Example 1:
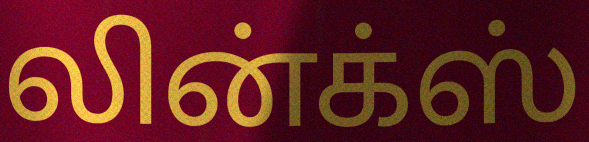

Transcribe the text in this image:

லின்க்ஸ்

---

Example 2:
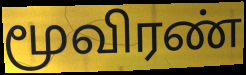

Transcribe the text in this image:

மூவிரண்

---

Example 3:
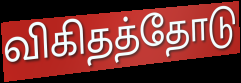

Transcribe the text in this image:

விகிதத்தோடு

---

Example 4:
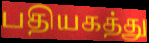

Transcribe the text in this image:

பதியகத்து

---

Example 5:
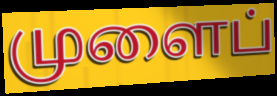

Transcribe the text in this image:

முளைப்